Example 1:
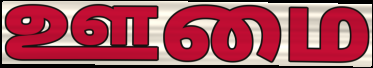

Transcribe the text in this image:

ஊமை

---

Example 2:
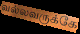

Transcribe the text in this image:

வல்லவருக்கே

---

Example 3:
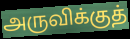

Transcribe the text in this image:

அருவிக்குத்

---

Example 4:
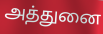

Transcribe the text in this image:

அத்துனை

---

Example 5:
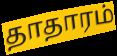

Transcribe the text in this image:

தாதாரம்